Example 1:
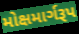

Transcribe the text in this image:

મોક્ષમાર્ગરૂપ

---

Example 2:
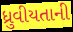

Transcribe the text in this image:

ધ્રુવીયતાની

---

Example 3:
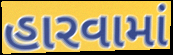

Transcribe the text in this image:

હારવામાં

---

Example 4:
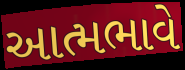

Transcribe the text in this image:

આત્મભાવે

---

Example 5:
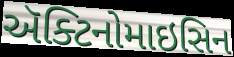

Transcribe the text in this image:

ઍક્ટિનોમાઇસિન